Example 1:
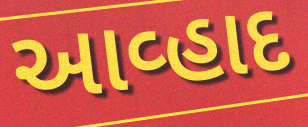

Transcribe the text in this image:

આવ્હાદ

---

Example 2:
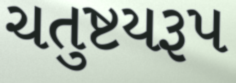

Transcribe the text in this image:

ચતુષ્ટયરૂપ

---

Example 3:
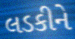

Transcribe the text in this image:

લડકીને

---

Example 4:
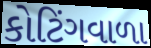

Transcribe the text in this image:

કોટિંગવાળા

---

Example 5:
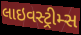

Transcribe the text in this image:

લાઇવસ્ટ્રીમ્સ